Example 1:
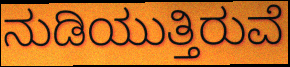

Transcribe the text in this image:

ನುಡಿಯುತ್ತಿರುವೆ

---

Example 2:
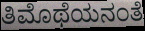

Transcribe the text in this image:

ತಿಮೊಥೆಯನಂತೆ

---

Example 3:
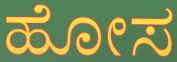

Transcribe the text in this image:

ಹೋಸ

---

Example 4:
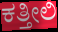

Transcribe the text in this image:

ಕತ್ತೀಲಿ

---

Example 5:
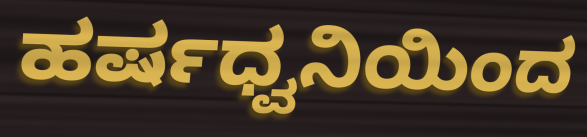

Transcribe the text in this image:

ಹರ್ಷಧ್ವನಿಯಿಂದ